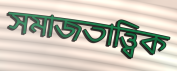
সমাজতাত্ত্বিক